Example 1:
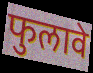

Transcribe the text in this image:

फुलावे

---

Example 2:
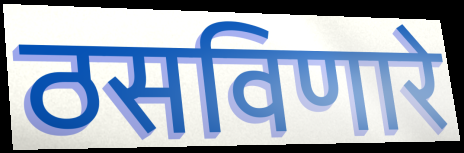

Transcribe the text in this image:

ठसविणारे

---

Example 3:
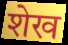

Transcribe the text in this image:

शेख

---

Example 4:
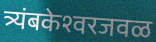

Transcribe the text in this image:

त्र्यंबकेश्वरजवळ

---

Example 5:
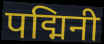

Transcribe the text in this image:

पद्मिनी